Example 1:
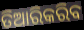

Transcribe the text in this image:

ତିଆରିକରିବ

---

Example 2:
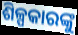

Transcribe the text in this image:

ଶିଳ୍ପକାରଙ୍କୁ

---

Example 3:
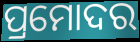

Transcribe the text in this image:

ପ୍ରମୋଦର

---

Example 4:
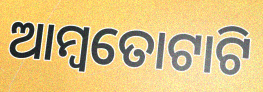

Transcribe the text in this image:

ଆମ୍ବତୋଟାଟି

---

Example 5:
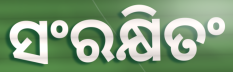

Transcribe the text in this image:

ସଂରକ୍ଷିତଂ